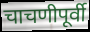
चाचणीपूर्वी